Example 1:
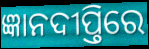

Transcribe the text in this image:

ଜ୍ଞାନଦୀପ୍ତିରେ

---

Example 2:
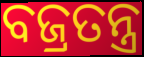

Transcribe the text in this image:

ବଜ୍ରତନ୍ତ୍ର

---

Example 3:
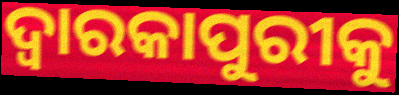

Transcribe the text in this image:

ଦ୍ୱାରକାପୁରୀକୁ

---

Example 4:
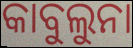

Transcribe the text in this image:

କାବୁଲୁନା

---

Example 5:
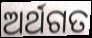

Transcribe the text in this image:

ଅର୍ଥଗତ